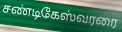
சண்டிகேஸ்வரரை